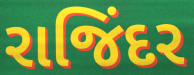
રાજિંદર